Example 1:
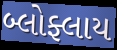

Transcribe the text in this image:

બ્લોફ્લાય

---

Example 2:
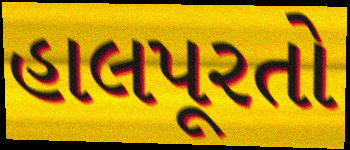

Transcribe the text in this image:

હાલપૂરતો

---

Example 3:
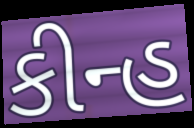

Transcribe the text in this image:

કીન્હ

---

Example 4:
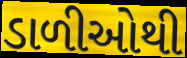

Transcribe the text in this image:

ડાળીઓથી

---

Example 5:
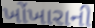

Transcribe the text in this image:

ખોંખારાની